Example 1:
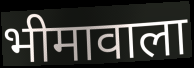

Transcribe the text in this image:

भीमावाला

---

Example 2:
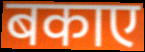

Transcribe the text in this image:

बकाए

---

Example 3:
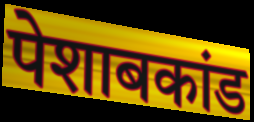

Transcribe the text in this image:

पेशाबकांड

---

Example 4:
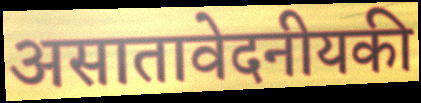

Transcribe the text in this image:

असातावेदनीयकी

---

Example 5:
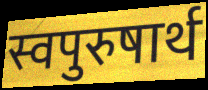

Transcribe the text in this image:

स्वपुरुषार्थ